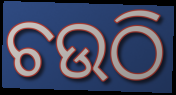
ଚଉଠି